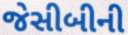
જેસીબીની